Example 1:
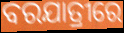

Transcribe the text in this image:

ବରଯାତ୍ରୀରେ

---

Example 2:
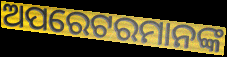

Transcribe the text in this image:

ଅପରେଟରମାନଙ୍କ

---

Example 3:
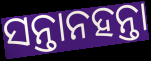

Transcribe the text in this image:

ସନ୍ତାନହନ୍ତା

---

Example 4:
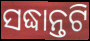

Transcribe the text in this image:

ସଦ୍ଧାନ୍ତଟି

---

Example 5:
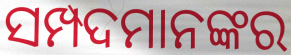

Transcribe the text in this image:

ସମ୍ପଦମାନଙ୍କର